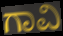
ಗಾವಿ